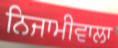
ਨਿਜਾਮੀਵਾਲਾ